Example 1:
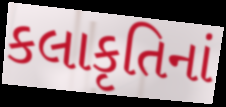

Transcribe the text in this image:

કલાકૃતિનાં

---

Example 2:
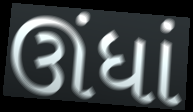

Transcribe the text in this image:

ઊંધાં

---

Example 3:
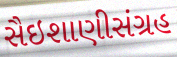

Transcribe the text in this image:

સૈઇશાણીસંગ્રહ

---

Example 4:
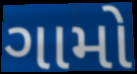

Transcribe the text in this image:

ગામો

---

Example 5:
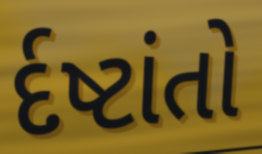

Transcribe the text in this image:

ર્દષ્ટાંતો